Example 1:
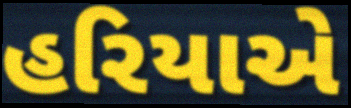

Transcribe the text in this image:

હરિયાએ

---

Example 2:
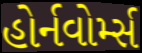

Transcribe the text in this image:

હોર્નવોર્મ્સ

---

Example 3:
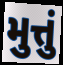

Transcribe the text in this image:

મુત્તું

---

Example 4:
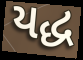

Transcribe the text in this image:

યદ્ધ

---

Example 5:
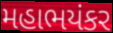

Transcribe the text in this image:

મહાભયંકર